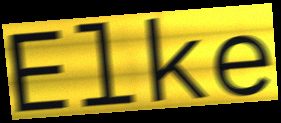
Elke